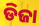
ଡିଜା